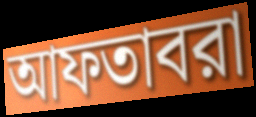
আফতাবরা